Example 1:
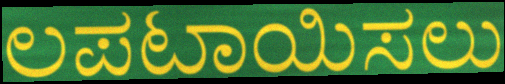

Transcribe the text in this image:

ಲಪಟಾಯಿಸಲು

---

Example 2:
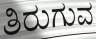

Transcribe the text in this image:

ತಿರುಗುವ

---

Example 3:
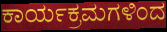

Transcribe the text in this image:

ಕಾರ್ಯಕ್ರಮಗಳಿಂದ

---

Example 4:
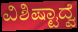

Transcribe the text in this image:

ವಿಶಿಷ್ಟಾದ್ವೆ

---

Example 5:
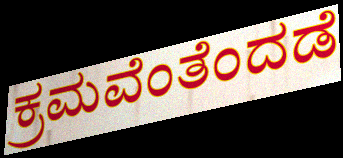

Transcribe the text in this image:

ಕ್ರಮವೆಂತೆಂದಡೆ